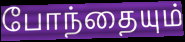
போந்தையும்